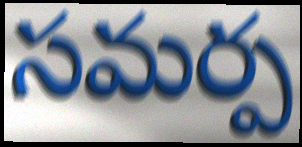
సమర్ప